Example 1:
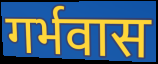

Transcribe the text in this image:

गर्भवास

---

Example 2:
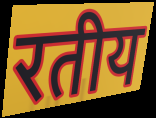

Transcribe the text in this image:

रतीय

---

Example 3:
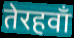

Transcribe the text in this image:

तेरहवाँ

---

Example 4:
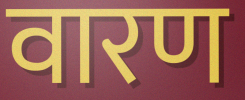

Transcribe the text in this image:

वारण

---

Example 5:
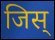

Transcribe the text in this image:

जिस्